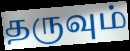
தருவும்